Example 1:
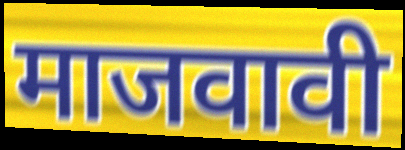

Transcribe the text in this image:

माजवावी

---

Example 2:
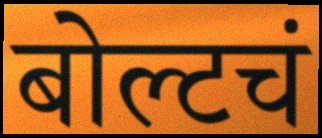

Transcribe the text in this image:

बोल्टचं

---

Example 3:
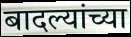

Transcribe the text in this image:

बादल्यांच्या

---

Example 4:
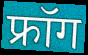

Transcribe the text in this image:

फ्रॉग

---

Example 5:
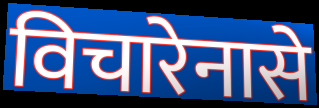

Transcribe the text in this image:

विचारेनासे